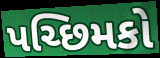
પચ્છિમકો